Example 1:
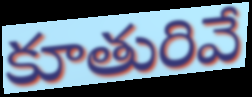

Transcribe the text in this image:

కూతురివే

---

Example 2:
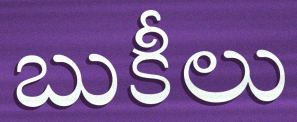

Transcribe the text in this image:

బుకీలు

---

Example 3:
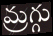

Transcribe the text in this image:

మ్రగ్గు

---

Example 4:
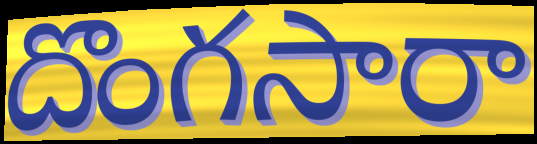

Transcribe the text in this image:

దొంగసారా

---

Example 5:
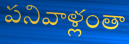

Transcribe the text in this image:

పనివాళ్లంతా